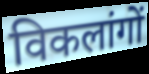
विकलांगों